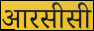
आरसीसी